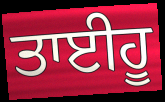
ਤਾਈਹੂ